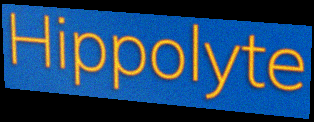
Hippolyte